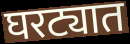
घरट्यात